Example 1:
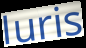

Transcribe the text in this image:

Iuris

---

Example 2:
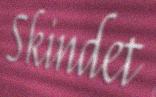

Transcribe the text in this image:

Skindet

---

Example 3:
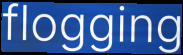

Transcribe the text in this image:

flogging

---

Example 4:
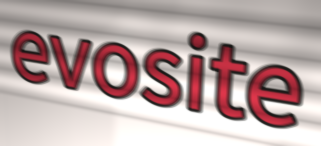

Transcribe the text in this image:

evosite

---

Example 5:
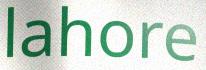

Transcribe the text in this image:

lahore